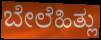
ಬೇಲೆಹಿತ್ಲು